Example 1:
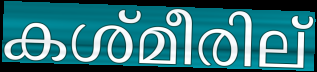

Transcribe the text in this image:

കശ്മീരില്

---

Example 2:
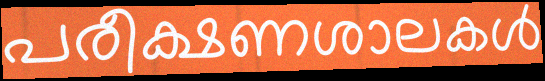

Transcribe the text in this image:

പരീക്ഷണശാലകൾ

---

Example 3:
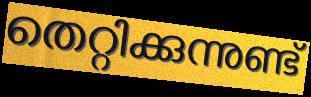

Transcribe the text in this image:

തെറ്റിക്കുന്നുണ്ട്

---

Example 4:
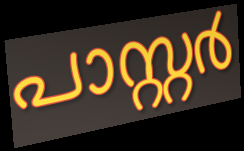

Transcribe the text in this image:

പാസ്റ്റർ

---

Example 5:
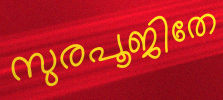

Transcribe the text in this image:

സുരപൂജിതേ